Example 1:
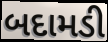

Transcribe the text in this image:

બદામડી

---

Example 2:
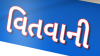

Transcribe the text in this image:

વિતવાની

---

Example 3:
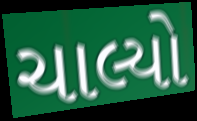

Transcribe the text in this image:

ચાલ્યો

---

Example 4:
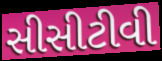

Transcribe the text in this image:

સીસીટીવી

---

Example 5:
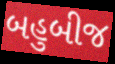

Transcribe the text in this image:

બહુબીજ